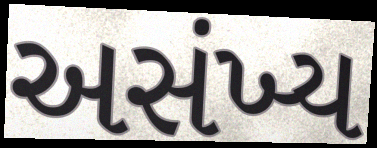
અસંખ્ય